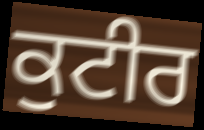
ਕੁਟੀਰ